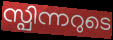
സ്പിന്നറുടെ